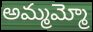
అమ్మమ్మో